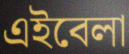
এইবেলা